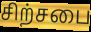
சிற்சபை